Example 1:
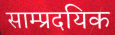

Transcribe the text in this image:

साम्प्रदयिक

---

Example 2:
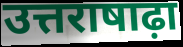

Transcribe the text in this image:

उत्तराषाढ़ा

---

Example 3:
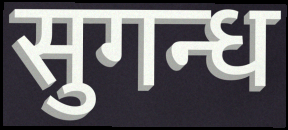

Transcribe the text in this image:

सुगन्ध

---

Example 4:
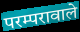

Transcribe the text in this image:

परम्परावाले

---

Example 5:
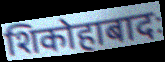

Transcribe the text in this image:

शिकोहाबादः